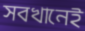
সবখানেই